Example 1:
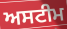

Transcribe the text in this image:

ਅਸਟੀਮ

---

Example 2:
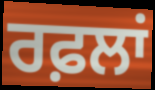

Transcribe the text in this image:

ਰਫ਼ਲਾਂ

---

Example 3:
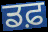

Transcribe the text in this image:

ਡਫ਼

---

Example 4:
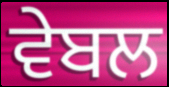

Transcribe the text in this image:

ਵੇਬਲ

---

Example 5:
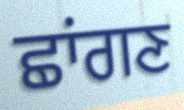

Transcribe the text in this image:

ਛਾਂਗਣ